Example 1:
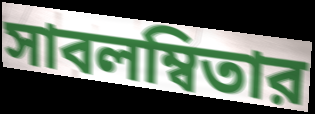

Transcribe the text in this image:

সাবলম্বিতার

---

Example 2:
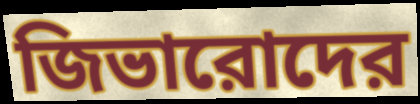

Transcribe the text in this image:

জিভারোদের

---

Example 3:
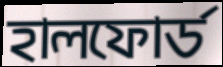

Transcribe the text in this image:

হালফোর্ড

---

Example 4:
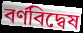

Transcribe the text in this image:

বর্ণবিদ্বেষ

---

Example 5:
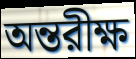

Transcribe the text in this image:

অন্তরীক্ষ